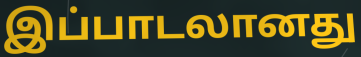
இப்பாடலானது